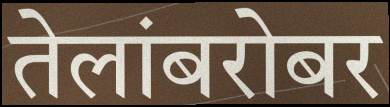
तेलांबरोबर